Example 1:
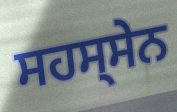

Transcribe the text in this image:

ਸਹਸ੍ਸੇਨ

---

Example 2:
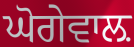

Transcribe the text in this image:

ਘੋਗੇਵਾਲ਼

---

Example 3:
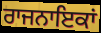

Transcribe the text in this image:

ਰਾਜਨਾਇਕਾਂ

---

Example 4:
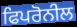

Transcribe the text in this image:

ਫਿਪਰੋਨੀਲ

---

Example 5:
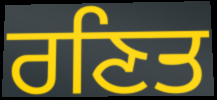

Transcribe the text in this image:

ਰਣਿਤ